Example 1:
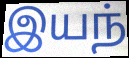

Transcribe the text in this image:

இயந்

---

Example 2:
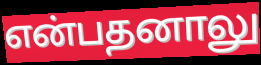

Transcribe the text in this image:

என்பதனாலு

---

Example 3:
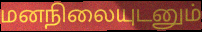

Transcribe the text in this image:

மனநிலையுடனும்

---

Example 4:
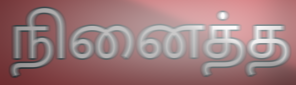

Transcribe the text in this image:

நினைத்த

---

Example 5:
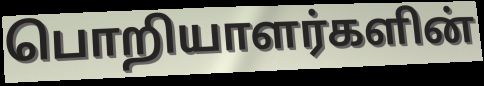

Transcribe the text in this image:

பொறியாளர்களின்